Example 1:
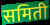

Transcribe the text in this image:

समिती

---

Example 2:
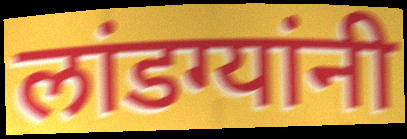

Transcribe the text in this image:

लांडग्यांनी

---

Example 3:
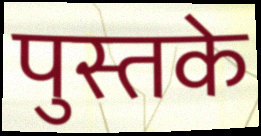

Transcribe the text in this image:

पुस्‍तके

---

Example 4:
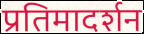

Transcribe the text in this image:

प्रतिमादर्शन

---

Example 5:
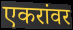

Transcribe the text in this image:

एकरांवर